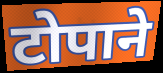
टोपाने